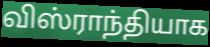
விஸ்ராந்தியாக